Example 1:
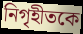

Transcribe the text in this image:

নিগৃহীতকে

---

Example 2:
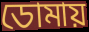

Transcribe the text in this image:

ডোমায়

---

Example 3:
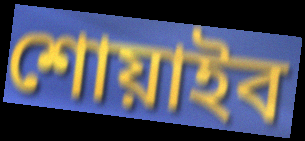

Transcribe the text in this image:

শোয়াইব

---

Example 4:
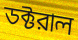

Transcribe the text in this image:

ডক্টরাল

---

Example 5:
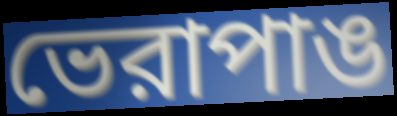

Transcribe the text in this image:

ভেরাপাঙ